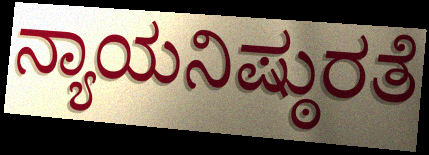
ನ್ಯಾಯನಿಷ್ಠುರತೆ